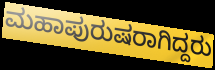
ಮಹಾಪುರುಷರಾಗಿದ್ದರು